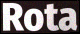
Rota